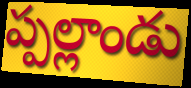
ప్పల్లాండు